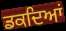
ਡਕਦਿਆਂ